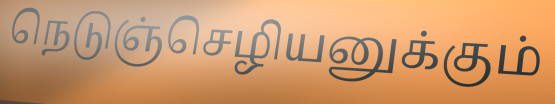
நெடுஞ்செழியனுக்கும்